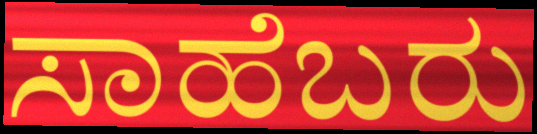
ಸಾಹೆಬರು